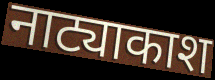
नाट्याकाश